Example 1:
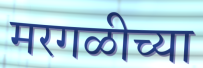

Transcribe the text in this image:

मरगळीच्या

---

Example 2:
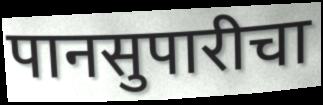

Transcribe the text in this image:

पानसुपारीचा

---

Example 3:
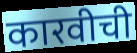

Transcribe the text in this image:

कारवीची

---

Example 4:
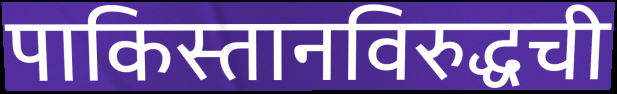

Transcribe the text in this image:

पाकिस्तानविरुद्धची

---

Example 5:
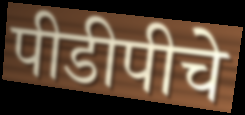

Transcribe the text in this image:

पीडीपीचे